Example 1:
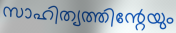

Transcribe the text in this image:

സാഹിത്യത്തിന്റേയും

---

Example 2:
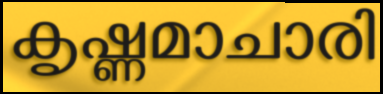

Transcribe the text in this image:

കൃഷ്ണമാചാരി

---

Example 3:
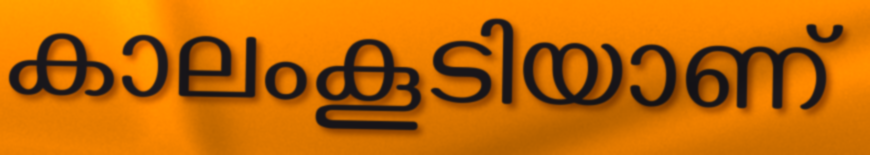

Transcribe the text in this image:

കാലംകൂടിയാണ്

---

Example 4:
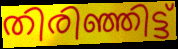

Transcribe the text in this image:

തിരിഞ്ഞിട്ട്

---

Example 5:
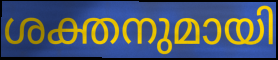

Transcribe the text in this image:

ശക്തനുമായി